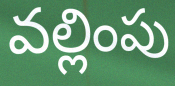
వల్లింపు